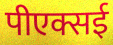
पीएक्सई